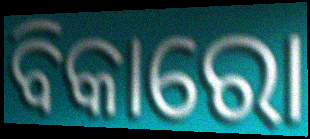
ବିକାରୋ